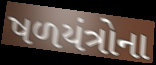
ષળયંત્રોના